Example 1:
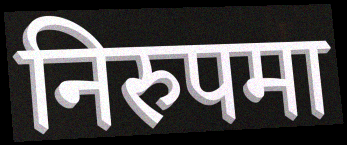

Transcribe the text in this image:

निरुपमा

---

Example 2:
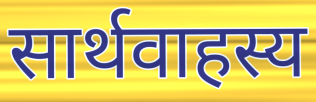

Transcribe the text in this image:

सार्थवाहस्य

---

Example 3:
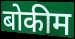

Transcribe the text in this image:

बोकीम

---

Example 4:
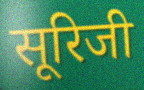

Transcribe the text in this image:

सूरिजी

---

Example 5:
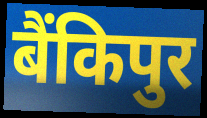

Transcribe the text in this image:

बैंकिपुर